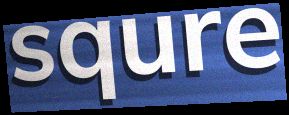
squre